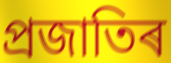
প্ৰজাতিৰ